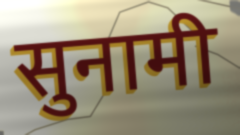
सुनामी